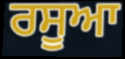
ਰਸੂਆ